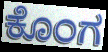
ಕೊಂಗ